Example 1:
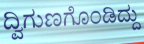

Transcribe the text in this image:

ದ್ವಿಗುಣಗೊಂಡಿದ್ದು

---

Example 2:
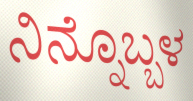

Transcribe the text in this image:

ನಿನ್ನೊಬ್ಬಳ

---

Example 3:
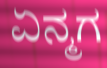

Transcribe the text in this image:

ಏನ್ಮಗ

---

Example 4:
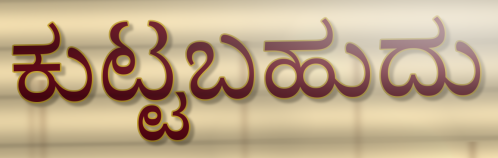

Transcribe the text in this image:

ಕುಟ್ಟಬಹುದು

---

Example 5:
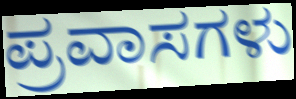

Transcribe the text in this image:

ಪ್ರವಾಸಗಳು